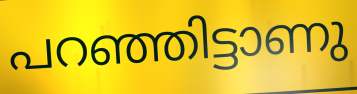
പറഞ്ഞിട്ടാണു